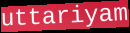
uttariyam